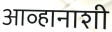
आव्हानाशी